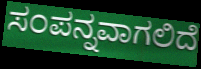
ಸಂಪನ್ನವಾಗಲಿದೆ